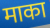
माका